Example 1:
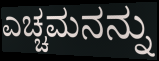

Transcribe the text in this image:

ಎಚ್ಚಮನನ್ನು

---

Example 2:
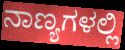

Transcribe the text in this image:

ನಾಣ್ಯಗಳಲ್ಲಿ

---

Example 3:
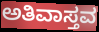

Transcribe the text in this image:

ಅತಿವಾಸ್ತವ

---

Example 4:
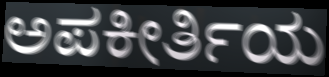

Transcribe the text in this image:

ಅಪಕೀರ್ತಿಯ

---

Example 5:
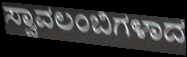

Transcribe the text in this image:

ಸ್ವಾವಲಂಬಿಗಳಾದ